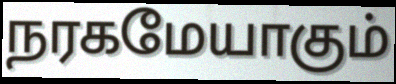
நரகமேயாகும்